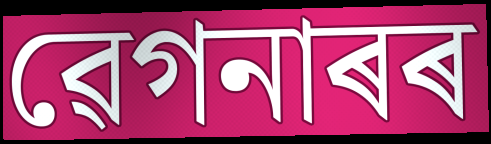
ৱেগনাৰৰ